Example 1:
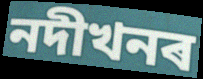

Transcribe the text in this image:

নদীখনৰ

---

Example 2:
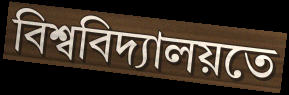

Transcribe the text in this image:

বিশ্ববিদ্যালয়তে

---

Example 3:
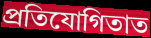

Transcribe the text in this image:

প্ৰতিযোগিতাত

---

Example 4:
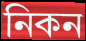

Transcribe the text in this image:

নিকন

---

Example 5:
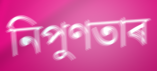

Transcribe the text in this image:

নিপুণতাৰ